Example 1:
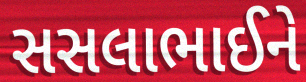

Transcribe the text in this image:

સસલાભાઈને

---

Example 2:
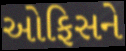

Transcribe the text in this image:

ઓફિસને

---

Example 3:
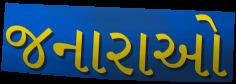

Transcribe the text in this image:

જનારાઓ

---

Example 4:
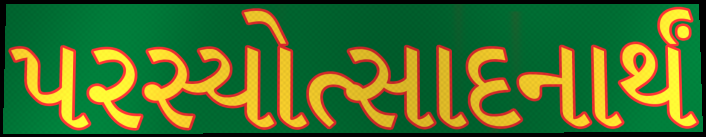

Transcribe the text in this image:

પરસ્યોત્સાદનાર્થં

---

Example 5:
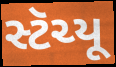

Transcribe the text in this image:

સ્ટૅચ્યૂ